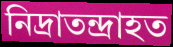
নিদ্রাতন্দ্রাহত